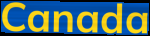
Canada